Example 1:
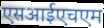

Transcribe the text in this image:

एसआईएचएम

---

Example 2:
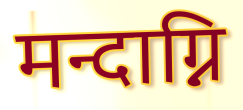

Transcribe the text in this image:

मन्दाग्नि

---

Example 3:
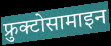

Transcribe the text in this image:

फ्रुक्टोसामाइन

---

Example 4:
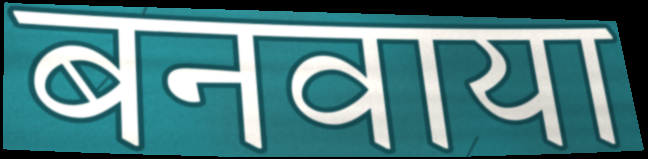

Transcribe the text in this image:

बनवाया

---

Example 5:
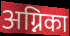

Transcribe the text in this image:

अग्निका